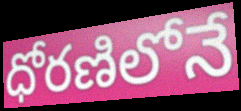
ధోరణిలోనే